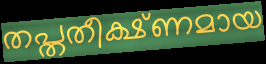
തപ്തതീക്ഷ്ണമായ